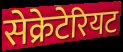
सेक्रेटेरियट